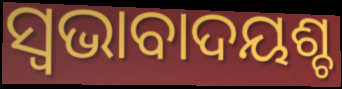
ସ୍ଵଭାବାଦୟଶ୍ଚ